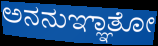
ಅನನುಞ್ಞಾತೋ